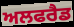
ਅਲਫਰੈਡ